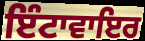
ਇੰਟਾਵਾਇਰ